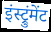
इंस्ट्रुंमेंट